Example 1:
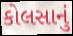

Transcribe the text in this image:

કોલસાનું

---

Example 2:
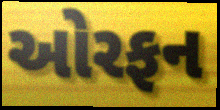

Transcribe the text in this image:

ઓરફન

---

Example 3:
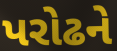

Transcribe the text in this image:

પરોઢને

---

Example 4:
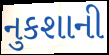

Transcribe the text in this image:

નુકશાની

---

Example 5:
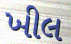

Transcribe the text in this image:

ખીલ